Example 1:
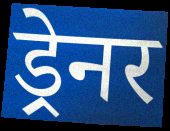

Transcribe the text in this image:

ड्रेनर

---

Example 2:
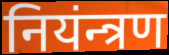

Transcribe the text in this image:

नियंन्त्रण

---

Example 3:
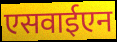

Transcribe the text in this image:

एसवाईएन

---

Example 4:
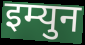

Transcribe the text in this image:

इम्युन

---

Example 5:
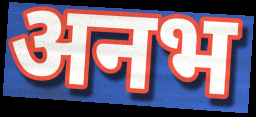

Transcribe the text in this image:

अनभ